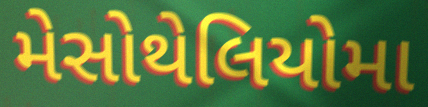
મેસોથેલિયોમા